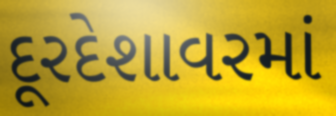
દૂરદેશાવરમાં